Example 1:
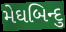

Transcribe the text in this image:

મેઘબિન્દુ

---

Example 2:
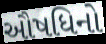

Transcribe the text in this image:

ઔષધિનો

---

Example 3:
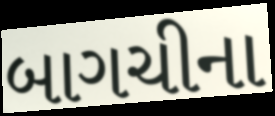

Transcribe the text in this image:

બાગચીના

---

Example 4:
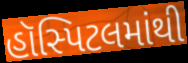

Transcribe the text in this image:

હૉસ્પિટલમાંથી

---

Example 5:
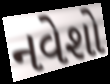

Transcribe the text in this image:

નવેશો